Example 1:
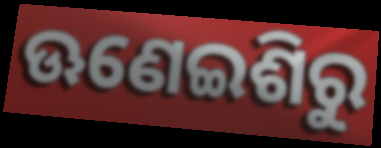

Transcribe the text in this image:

ଊଣେଇଶିରୁ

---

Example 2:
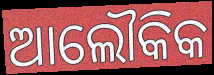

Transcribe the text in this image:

ଆଲୌକିକ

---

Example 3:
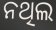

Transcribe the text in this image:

ନଥିଲ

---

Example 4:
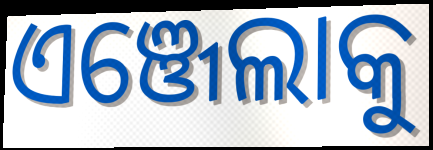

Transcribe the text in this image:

ଏଞ୍ଜେଲାକୁ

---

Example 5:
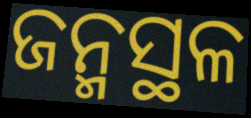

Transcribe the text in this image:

ଜନ୍ମସ୍ଥଳ